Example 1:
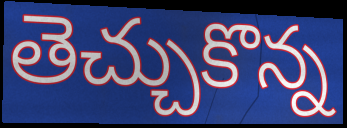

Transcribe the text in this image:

తెచ్చుకొన్న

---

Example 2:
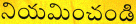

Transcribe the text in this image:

నియమించండి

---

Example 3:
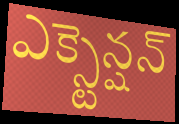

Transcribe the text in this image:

ఎక్స్టెన్షన్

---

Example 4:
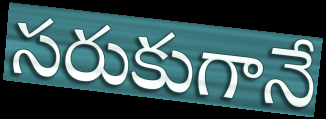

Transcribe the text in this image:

సరుకుగానే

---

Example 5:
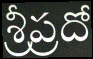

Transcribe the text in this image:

శ్రీప్రదో